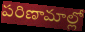
పరిణామాల్లో